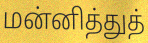
மன்னித்துத்